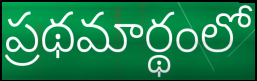
ప్రథమార్థంలో